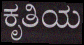
ಕೃತಿಯ